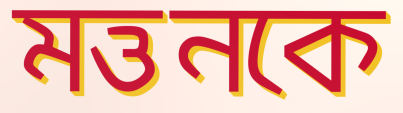
মত্তনকে